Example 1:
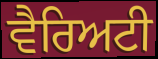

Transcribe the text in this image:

ਵੈਰਿਅਟੀ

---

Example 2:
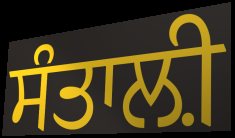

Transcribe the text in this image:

ਸੰਤਾਲ਼ੀ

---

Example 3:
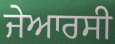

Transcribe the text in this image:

ਜੇਆਰਸੀ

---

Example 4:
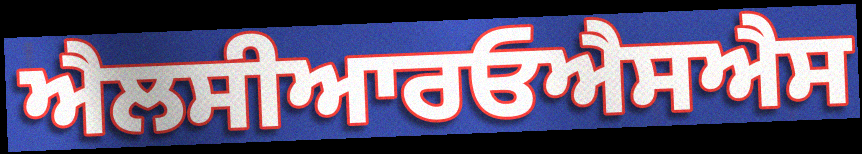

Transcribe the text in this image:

ਐਲਸੀਆਰਓਐਸਐਸ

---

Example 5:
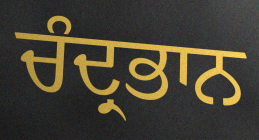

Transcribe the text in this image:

ਚੰਦ੍ਰਭਾਨ